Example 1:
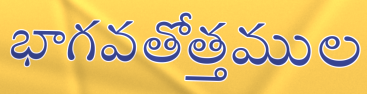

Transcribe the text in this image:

భాగవతోత్తముల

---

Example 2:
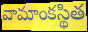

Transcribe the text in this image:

వామాంకస్థిత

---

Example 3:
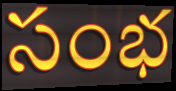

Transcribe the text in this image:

సంభ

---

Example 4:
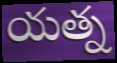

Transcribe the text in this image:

యత్న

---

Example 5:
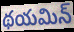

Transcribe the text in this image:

థయమిన్